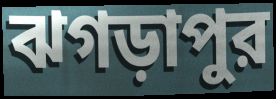
ঝগড়াপুর